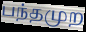
பந்தமுற